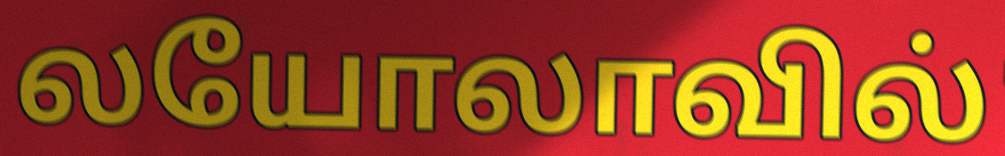
லயோலாவில்